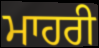
ਮਾਹਰੀ